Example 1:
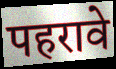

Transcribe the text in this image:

पहरावे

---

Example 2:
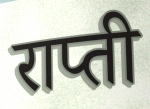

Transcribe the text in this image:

राप्ती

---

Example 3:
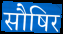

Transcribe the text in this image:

सौषिर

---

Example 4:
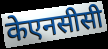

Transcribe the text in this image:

केएनसीसी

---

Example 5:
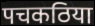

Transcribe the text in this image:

पचकठिया